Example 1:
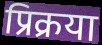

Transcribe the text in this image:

प्रिक्रया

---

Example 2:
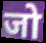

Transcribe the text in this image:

जो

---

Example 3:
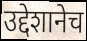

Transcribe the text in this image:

उद्देशानेच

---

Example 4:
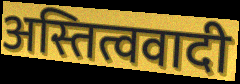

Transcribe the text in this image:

अस्तित्ववादी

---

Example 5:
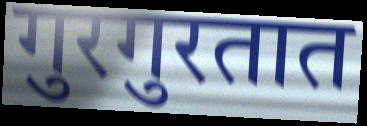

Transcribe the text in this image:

गुरगुरतात